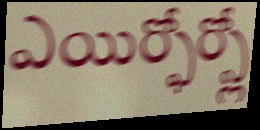
ఎయిర్ఫోర్స్లో